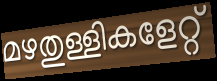
മഴതുള്ളികളേറ്റ്